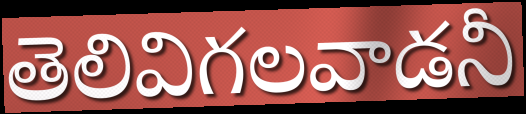
తెలివిగలవాడనీ